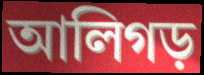
আলিগড়